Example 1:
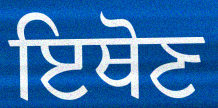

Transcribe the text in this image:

ਇਥੋਣ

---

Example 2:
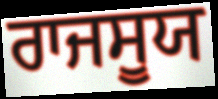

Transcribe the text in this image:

ਰਾਜਸੂਯ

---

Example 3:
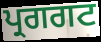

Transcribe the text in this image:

ਪ੍ਰਗਗਟ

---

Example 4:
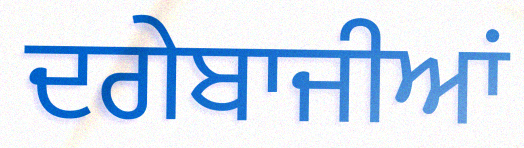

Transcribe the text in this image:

ਦਗੇਬਾਜੀਆਂ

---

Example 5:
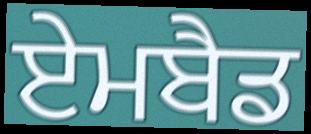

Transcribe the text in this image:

ਏਮਬੈਡ